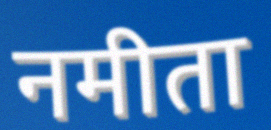
नमीता